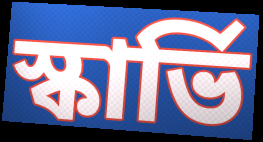
স্কার্ভি